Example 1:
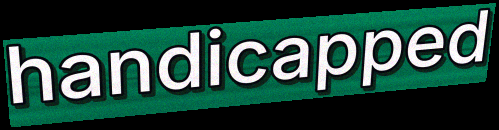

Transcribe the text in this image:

handicapped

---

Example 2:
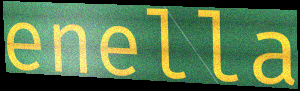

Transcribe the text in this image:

enella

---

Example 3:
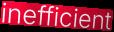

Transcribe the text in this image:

inefficient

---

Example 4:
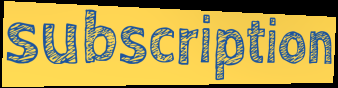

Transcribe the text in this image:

subscription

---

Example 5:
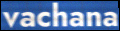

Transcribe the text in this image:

vachana